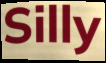
Silly